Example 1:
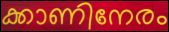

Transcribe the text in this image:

ക്കാണിനേരം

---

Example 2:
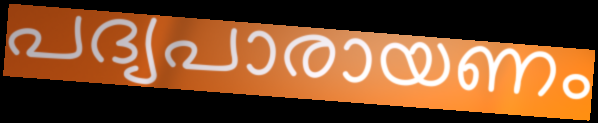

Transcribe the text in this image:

പദ്യപാരായണം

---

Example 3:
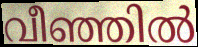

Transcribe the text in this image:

വീഞ്ഞിൽ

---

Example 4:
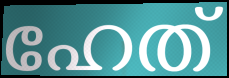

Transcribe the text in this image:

ഹേത്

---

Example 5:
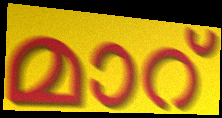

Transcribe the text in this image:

മാറ്